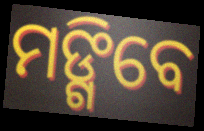
ମଙ୍ଗିବେ